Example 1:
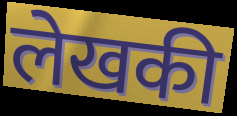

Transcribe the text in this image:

लेखकी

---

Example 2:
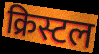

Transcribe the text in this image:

क्रिस्टल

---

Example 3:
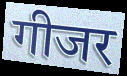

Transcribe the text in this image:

गीजर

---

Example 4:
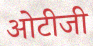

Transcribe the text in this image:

ओटीजी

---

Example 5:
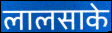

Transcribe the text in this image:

लालसाके